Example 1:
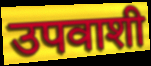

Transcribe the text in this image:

उपवाशी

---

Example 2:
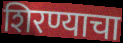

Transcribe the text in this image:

शिरण्याचा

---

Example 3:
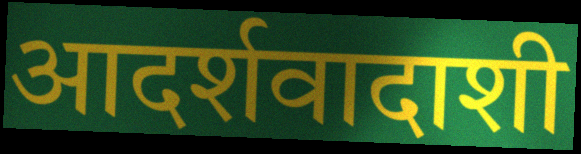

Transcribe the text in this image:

आदर्शवादाशी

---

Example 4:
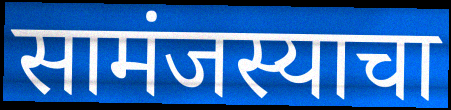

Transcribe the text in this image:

सामंजस्याचा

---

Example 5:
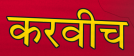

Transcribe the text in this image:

करवीच